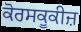
ਕੋਰਸਕੂਕੀਜ਼